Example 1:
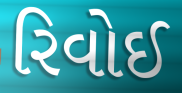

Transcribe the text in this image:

રિવોઈ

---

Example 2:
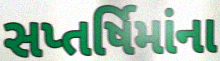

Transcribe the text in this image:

સપ્તર્ષિમાંના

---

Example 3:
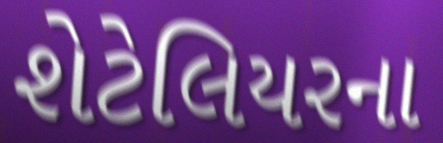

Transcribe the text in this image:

શેટેલિયરના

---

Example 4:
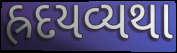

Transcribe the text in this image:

હ્રદયવ્યથા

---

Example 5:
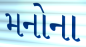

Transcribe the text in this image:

મનોના